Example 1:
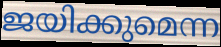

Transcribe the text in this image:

ജയിക്കുമെന്ന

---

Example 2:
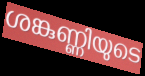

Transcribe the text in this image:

ശങ്കുണ്ണിയുടെ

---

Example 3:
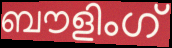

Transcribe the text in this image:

ബൗളിംഗ്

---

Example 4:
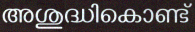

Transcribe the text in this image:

അശുദ്ധികൊണ്ട്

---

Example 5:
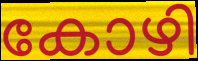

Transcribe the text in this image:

കോഴി